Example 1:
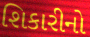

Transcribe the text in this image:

શિકારીનો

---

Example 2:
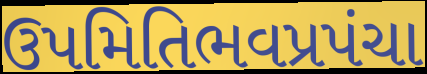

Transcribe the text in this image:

ઉપમિતિભવપ્રપંચા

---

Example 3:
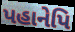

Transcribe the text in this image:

પહાનેપિ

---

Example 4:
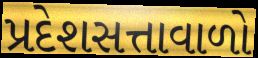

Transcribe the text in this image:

પ્રદેશસત્તાવાળો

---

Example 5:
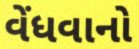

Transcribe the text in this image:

વેંધવાનો